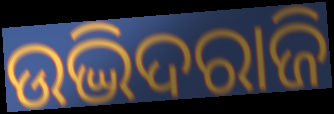
ଉଦ୍ଭିଦରାଜି